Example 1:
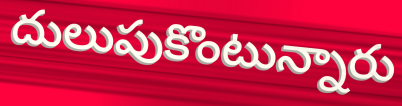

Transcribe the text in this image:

దులుపుకొంటున్నారు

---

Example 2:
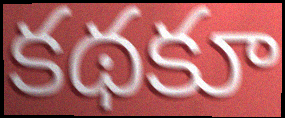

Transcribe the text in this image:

కథకూ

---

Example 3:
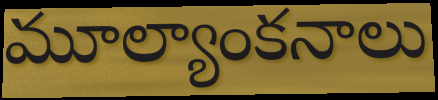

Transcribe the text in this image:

మూల్యాంకనాలు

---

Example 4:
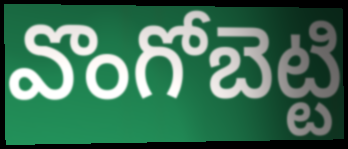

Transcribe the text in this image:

వొంగోబెట్టి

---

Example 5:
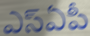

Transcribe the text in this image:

ఎస్ఏపీ